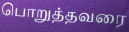
பொறுத்தவரை